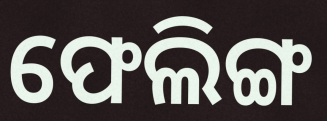
ଫେଲିଙ୍ଗ